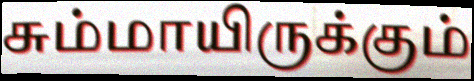
சும்மாயிருக்கும்